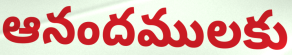
ఆనందములకు